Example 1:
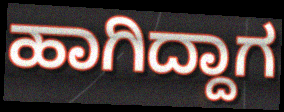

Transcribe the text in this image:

ಹಾಗಿದ್ದಾಗ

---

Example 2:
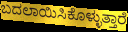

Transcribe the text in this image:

ಬದಲಾಯಿಸಿಕೊಳ್ಳುತ್ತಾರೆ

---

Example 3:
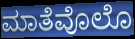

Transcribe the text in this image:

ಮಾತೆವೊಲೊ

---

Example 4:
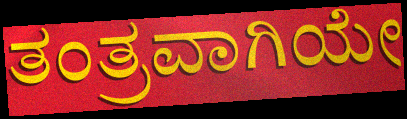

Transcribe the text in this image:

ತಂತ್ರವಾಗಿಯೇ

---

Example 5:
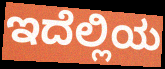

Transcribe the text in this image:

ಇದೆಲ್ಲಿಯ